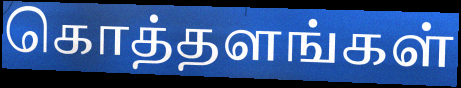
கொத்தளங்கள்